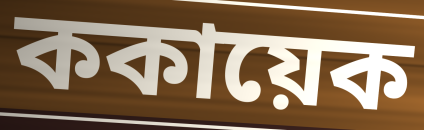
ককায়েক